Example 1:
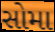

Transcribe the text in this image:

સોમા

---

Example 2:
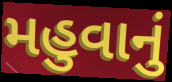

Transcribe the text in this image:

મહુવાનું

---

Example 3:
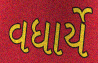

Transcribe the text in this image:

વધાર્યે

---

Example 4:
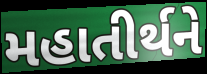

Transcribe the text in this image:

મહાતીર્થને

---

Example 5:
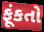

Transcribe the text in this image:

ફૂંકતો